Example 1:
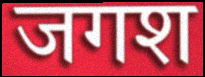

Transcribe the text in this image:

जगश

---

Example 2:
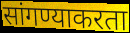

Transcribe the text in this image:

सांगण्याकरता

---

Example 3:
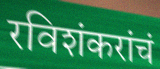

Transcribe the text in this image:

रविशंकरांचं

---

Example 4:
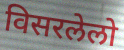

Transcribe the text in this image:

विसरलेलो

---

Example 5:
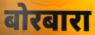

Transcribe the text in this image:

बोरबारा